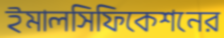
ইমালসিফিকেশনের